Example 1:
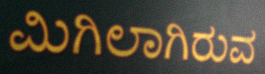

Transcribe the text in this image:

ಮಿಗಿಲಾಗಿರುವ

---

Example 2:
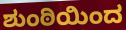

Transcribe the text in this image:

ಶುಂಠಿಯಿಂದ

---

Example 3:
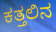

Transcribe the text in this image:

ಕತ್ತಲಿನ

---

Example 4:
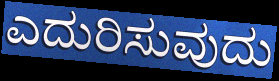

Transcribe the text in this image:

ಎದುರಿಸುವುದು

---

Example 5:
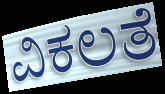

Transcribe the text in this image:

ವಿಕಲತೆ